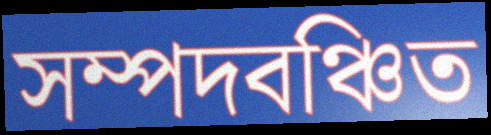
সম্পদবঞ্চিত